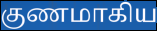
குணமாகிய